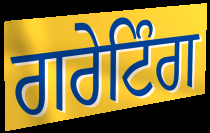
ਗਰੇਟਿੰਗ